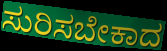
ಸುರಿಸಬೇಕಾದ